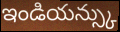
ఇండియన్స్కు